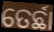
ତେର୍ଛା